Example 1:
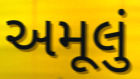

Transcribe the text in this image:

અમૂલું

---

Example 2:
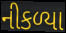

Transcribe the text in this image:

નીકળ્યા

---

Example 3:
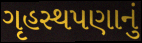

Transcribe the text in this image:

ગૃહસ્થપણાનું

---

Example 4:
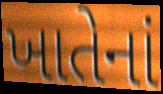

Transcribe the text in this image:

ખાતેનાં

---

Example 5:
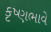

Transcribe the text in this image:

કૃષ્ણભાવે